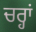
ਚਰ੍ਹਾਂ